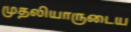
முதலியாருடைய